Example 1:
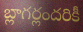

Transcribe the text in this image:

బ్లాగర్లందరికీ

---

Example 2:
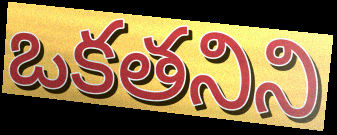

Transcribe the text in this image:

ఒకతనిని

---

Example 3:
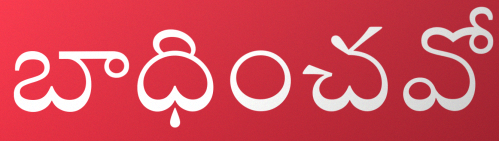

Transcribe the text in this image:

బాధించవో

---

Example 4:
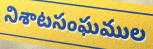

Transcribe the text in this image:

నిశాటసంఘముల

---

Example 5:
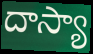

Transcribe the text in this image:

దాస్యా